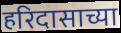
हरिदासाच्या